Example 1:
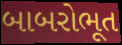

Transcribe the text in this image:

બાબરોભૂત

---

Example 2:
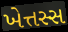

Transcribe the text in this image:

ખેત્તસ્સ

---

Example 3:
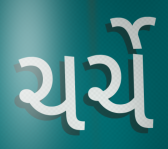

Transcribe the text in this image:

ચર્ચે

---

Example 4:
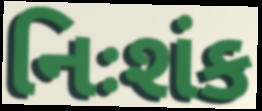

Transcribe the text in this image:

નિઃશંક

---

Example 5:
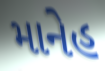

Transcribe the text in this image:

માનેહ